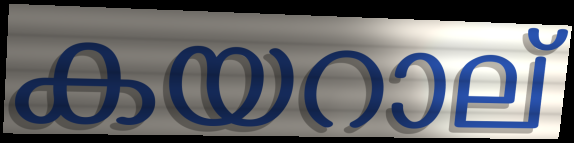
കയറാല്